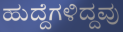
ಹುದ್ದೆಗಳಿದ್ದವು